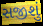
સજીશું